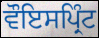
ਵੌਇਸਪ੍ਰਿੰਟ